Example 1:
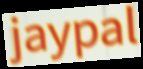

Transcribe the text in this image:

jaypal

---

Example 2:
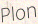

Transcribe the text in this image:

Plon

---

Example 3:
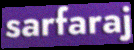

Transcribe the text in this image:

sarfaraj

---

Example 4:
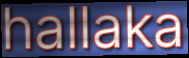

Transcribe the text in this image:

hallaka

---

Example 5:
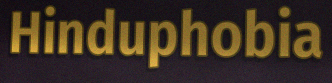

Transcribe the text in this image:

Hinduphobia